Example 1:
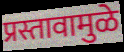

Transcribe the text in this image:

प्रस्तावामुळे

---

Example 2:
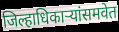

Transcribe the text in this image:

जिल्हाधिकाऱ्यांसमवेत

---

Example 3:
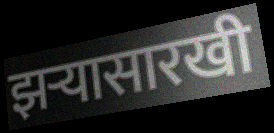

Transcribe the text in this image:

झर्‍यासारखी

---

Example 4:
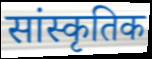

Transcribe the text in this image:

सांस्कृतिक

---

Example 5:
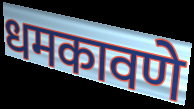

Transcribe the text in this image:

धमकावणे